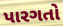
પારગતો